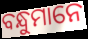
ବନ୍ଧୁମାନେ